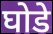
घोडे